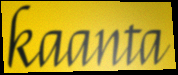
kaanta